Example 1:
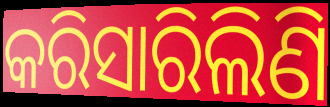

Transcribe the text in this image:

କରିସାରିଲିଣି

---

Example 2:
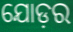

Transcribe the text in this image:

ଯୋଡ଼ର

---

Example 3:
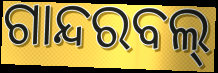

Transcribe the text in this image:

ଗାନ୍ଦରବଲ୍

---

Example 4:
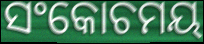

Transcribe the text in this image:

ସଂକୋଚମୟ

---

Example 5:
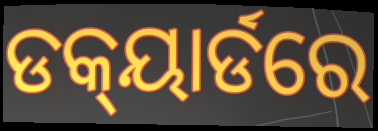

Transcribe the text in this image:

ଡକ୍‍ୟାର୍ଡରେ